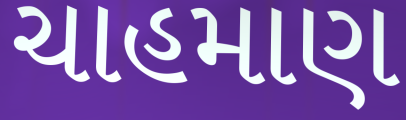
ચાહમાણ